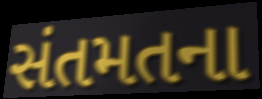
સંતમતના